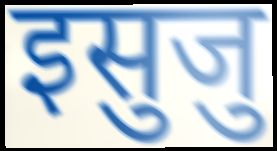
इसुजु